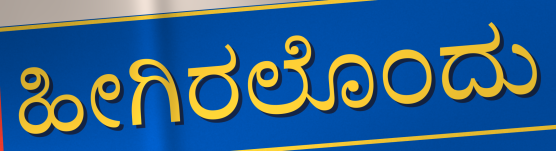
ಹೀಗಿರಲೊಂದು